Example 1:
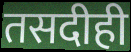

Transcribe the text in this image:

तसदीही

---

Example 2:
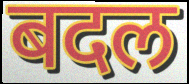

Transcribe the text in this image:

बदल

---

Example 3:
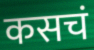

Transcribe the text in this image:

कसचं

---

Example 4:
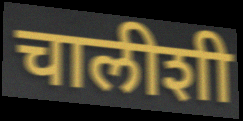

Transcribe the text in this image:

चालीशी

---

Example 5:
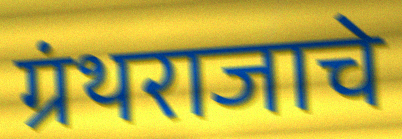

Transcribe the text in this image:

ग्रंथराजाचे